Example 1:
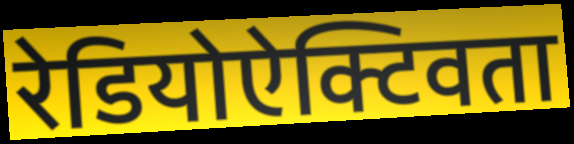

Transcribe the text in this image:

रेडियोऐक्टिवता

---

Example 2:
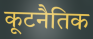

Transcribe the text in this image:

कूटनैतिक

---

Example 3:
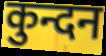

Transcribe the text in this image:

कुन्दन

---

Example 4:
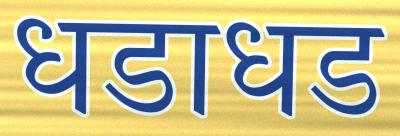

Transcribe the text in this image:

धडाधड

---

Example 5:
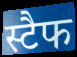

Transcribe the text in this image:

स्टैफ